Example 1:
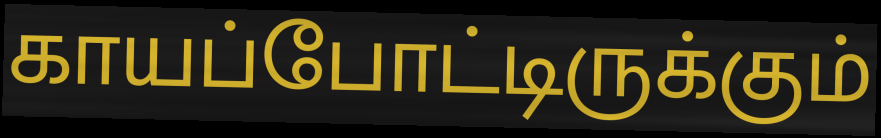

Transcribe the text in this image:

காயப்போட்டிருக்கும்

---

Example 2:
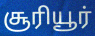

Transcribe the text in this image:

சூரியூர்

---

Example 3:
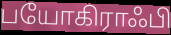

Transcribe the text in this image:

பயோகிராஃபி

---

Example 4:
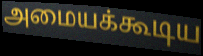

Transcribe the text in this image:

அமையக்கூடிய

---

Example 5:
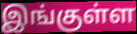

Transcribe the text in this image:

இங்குள்ள